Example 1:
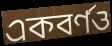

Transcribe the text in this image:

একবর্ণও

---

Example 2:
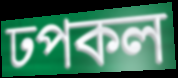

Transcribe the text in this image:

ঢপকল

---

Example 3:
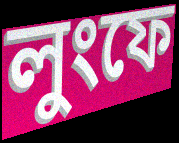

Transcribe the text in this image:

লুংফে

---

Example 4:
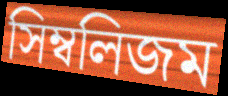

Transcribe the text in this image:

সিম্বলিজম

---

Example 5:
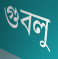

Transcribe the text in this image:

গুবলু